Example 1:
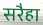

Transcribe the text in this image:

सरैहा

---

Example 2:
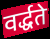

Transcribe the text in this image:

वर्द्धते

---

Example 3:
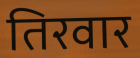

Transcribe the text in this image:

तिरवार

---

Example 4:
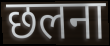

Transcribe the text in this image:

छलना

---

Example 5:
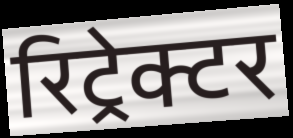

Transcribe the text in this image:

रिट्रेक्टर